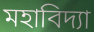
মহাবিদ্যা